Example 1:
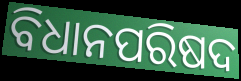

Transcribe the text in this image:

ବିଧାନପରିଷଦ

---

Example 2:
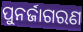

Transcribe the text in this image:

ପୁନର୍ଜାଗରଣ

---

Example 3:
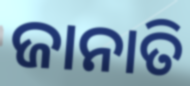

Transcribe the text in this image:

ଜାନାତି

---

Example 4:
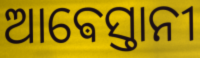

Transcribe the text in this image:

ଆଵେସ୍ତାନୀ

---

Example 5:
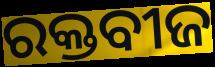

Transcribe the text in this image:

ରକ୍ତବୀଜ